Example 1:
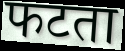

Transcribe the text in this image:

फटता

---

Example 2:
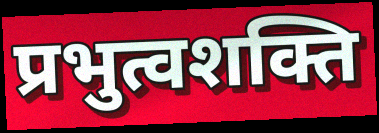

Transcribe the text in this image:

प्रभुत्वशक्ति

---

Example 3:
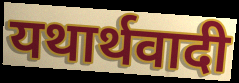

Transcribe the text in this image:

यथार्थवादी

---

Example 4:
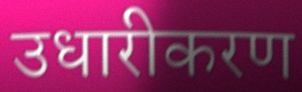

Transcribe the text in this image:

उधारीकरण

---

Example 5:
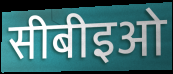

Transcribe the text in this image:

सीबीइओ